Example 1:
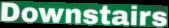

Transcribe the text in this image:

Downstairs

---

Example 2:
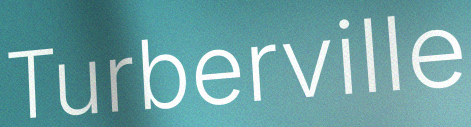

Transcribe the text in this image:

Turberville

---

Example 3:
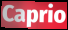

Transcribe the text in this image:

Caprio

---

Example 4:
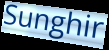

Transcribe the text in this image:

Sunghir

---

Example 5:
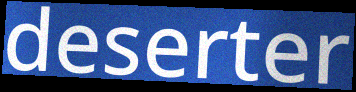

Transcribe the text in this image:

deserter